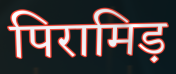
पिरामिड़